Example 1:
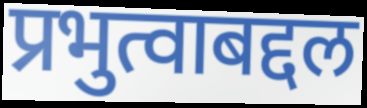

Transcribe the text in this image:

प्रभुत्वाबद्दल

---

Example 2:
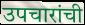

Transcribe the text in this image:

उपचारांची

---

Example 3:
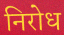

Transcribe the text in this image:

निरोध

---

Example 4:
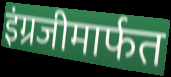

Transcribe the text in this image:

इंग्रजीमार्फत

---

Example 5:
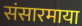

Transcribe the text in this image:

संसारमाया